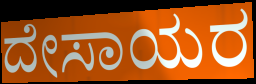
ದೇಸಾಯರ